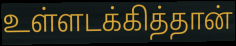
உள்ளடக்கித்தான்